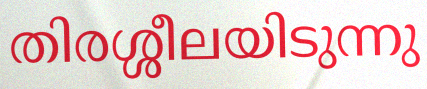
തിരശ്ശീലയിടുന്നു